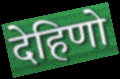
देहिणो